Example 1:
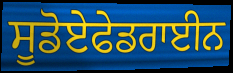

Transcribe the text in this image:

ਸੂਡੋਏਫੇਡਰਾਈਨ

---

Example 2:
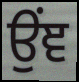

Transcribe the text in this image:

ਉਂਞ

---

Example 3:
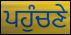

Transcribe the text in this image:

ਪਹੁੰਚਣੇ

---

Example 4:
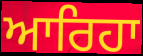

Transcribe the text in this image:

ਆਰਿਹਾ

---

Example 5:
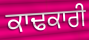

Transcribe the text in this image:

ਕਾਢਕਾਰੀ